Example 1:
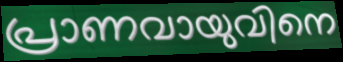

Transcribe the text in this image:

പ്രാണവായുവിനെ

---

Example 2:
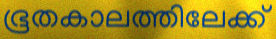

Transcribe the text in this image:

ഭൂതകാലത്തിലേക്ക്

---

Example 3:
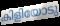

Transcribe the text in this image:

കിളിയോടു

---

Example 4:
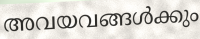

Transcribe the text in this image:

അവയവങ്ങൾക്കും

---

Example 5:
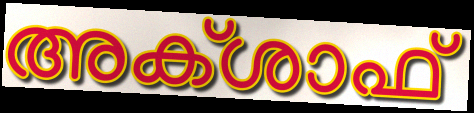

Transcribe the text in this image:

അക്ശാഫ്